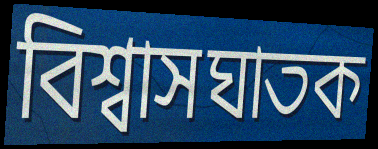
বিশ্বাসঘাতক